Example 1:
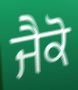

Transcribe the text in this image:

ਜੈਕੋ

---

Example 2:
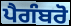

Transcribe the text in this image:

ਪੈਗੰਬਰੋ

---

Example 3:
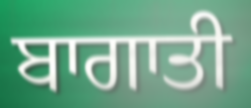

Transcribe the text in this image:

ਬਾਗਾਤੀ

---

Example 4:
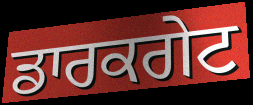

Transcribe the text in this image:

ਡਾਰਕਗੇਟ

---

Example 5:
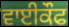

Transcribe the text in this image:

ਵਾਈਕੌਫ